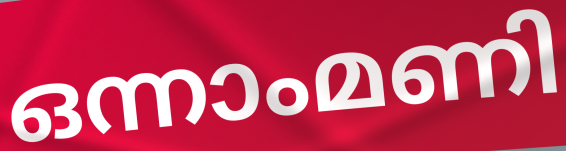
ഒന്നാംമണി